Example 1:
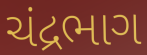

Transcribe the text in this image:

ચંદ્રભાગ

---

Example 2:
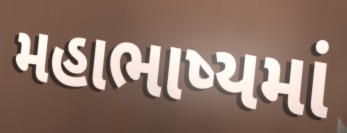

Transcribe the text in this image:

મહાભાષ્યમાં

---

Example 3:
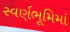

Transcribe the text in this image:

સ્વર્ણભૂમિમાં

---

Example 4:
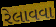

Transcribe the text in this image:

રેલાવવા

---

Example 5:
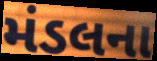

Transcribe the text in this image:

મંડલના